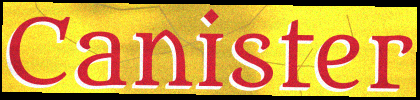
Canister